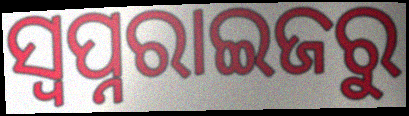
ସ୍ୱପ୍ନରାଇଜରୁ